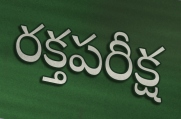
రక్తపరీక్ష